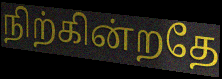
நிற்கின்றதே